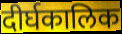
दीर्घकालिक